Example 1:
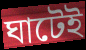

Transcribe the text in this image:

ঘাটেই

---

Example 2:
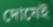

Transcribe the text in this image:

দোষেই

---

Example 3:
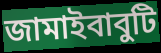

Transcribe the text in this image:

জামাইবাবুটি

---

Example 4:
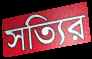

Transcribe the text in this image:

সত্যির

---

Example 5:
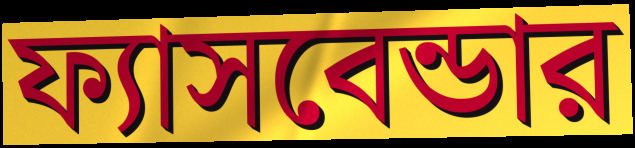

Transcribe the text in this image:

ফ্যাসবেন্ডার